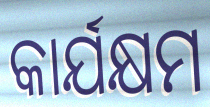
କାର୍ଯକ୍ଷମ